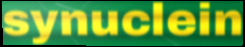
synuclein